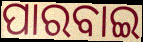
ପାରବାଇ